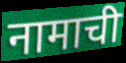
नामाची